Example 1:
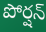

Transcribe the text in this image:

పోర్షన్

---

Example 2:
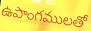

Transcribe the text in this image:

ఉపాంగములతో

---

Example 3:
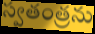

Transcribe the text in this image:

స్వతంత్రను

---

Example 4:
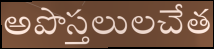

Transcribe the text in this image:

అపొస్తలులచేత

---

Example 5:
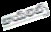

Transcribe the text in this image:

టాయ్‌లెట్స్